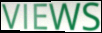
VIEWS